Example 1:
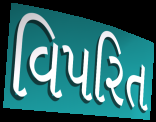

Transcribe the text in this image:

વિપરિત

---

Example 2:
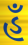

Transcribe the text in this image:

હઁ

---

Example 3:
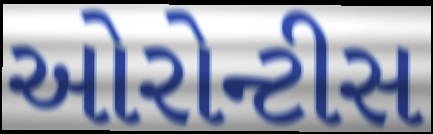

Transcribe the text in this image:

ઓરોન્ટીસ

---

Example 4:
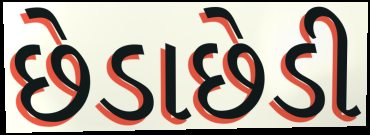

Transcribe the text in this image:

છેડાછેડી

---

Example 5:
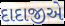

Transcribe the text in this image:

દાદાજીએ